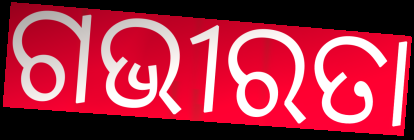
ଗଭୀରତା